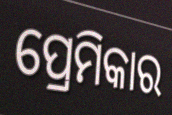
ପ୍ରେମିକାର